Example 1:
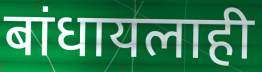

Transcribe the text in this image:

बांधायलाही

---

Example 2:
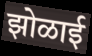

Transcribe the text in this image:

झोळाई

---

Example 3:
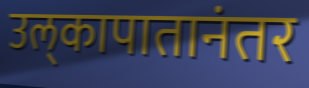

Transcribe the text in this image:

उल्कापातानंतर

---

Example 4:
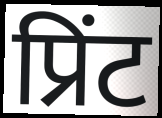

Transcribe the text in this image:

प्रिंट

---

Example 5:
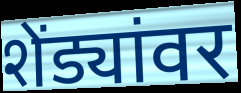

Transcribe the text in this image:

शेंड्यांवर